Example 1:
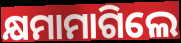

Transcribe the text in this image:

କ୍ଷମାମାଗିଲେ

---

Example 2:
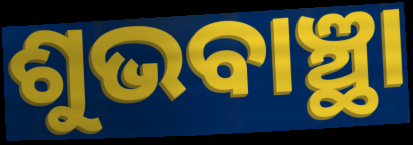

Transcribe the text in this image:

ଶୁଭବାଞ୍ଛା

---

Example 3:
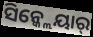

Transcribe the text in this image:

ସିନ୍କ୍ଲେୟାର୍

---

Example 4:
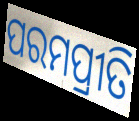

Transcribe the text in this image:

ପରମପ୍ରୀତି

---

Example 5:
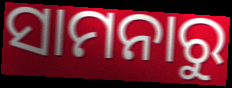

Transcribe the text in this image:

ସାମନାରୁ